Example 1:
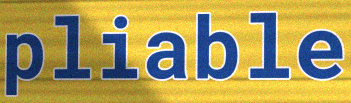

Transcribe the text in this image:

pliable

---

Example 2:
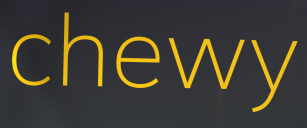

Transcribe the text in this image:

chewy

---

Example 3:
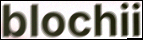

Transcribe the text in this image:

blochii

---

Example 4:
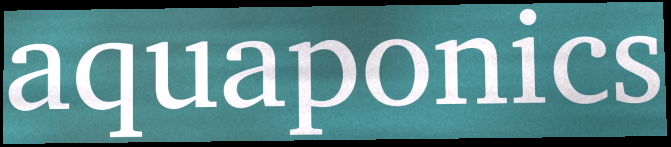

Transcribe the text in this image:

aquaponics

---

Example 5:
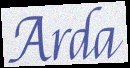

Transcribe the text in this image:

Arda